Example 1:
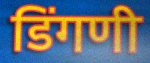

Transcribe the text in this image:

डिंगणी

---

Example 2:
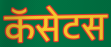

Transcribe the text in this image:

कॅसेटस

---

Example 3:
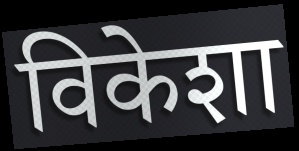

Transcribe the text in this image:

विकेशा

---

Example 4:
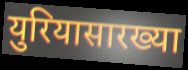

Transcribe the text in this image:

युरियासारख्या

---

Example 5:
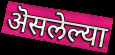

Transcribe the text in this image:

ऄसलेल्या